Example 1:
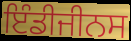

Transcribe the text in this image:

ਇੰਡੀਜੀਨਸ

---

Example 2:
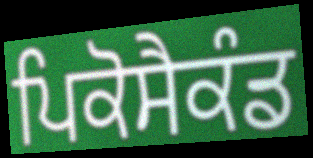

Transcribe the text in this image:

ਪਿਕੋਸੈਕੰਡ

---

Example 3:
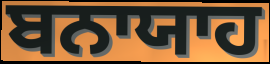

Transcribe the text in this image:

ਬਨਾਯਾਹ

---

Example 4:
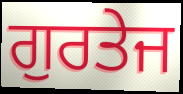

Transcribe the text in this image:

ਗੁਰਤੇਜ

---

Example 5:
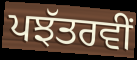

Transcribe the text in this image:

ਪਝੱਤਰਵੀਂ